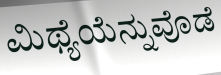
ಮಿಥ್ಯೆಯೆನ್ನುವೊಡೆ